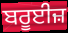
ਬਰੂਈਜ਼